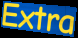
Extra